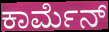
ಕಾರ್ಮೆನ್